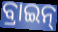
ବ୍ରାଇନ୍